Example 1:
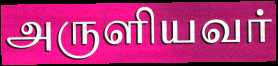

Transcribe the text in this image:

அருளியவர்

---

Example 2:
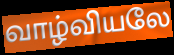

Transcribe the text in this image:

வாழ்வியலே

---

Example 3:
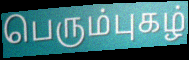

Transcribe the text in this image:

பெரும்புகழ்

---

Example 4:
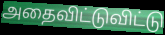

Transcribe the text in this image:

அதைவிட்டுவிட்டு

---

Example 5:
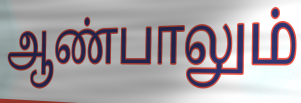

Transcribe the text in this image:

ஆண்பாலும்